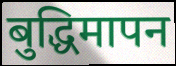
बुद्धिमापन